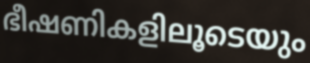
ഭീഷണികളിലൂടെയും